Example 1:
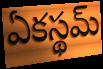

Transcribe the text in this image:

ఏకస్థమ్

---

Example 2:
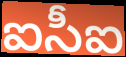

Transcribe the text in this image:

ఐసీఐ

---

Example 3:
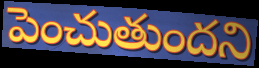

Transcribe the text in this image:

పెంచుతుందని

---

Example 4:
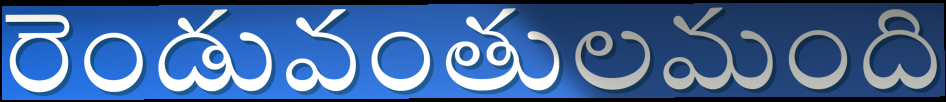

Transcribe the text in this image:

రెండువంతులమంది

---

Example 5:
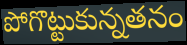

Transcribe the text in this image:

పోగొట్టుకున్నతనం